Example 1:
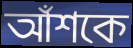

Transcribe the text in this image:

আঁশকে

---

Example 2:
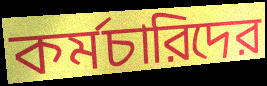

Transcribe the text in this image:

কর্মচারিদের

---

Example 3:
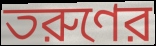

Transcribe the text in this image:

তরুণের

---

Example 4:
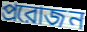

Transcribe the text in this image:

প্ররোজন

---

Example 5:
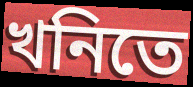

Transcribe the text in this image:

খনিতে